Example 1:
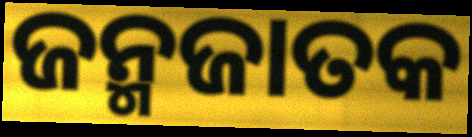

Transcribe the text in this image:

ଜନ୍ମଜାତକ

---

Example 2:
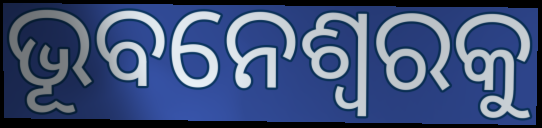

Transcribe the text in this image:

ଭୂବନେଶ୍ୱରକୁ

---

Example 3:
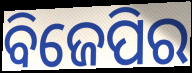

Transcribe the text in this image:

ବିଜେପିର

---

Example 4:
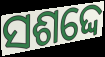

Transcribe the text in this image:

ସଶଦ୍ଦେ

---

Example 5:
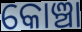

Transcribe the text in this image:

କୋଞ୍ଚା